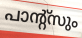
പാന്റ്സും